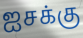
ஐசக்கு